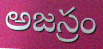
అజస్రం